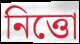
নিত্তো